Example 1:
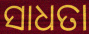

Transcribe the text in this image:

ସାଧତା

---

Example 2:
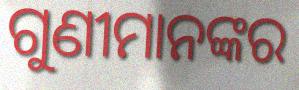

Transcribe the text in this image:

ଗୁଣୀମାନଙ୍କର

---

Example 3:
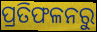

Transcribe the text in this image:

ପ୍ରତିଫଳନରୁ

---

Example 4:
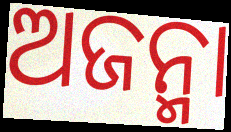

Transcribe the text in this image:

ଅଜନ୍ମା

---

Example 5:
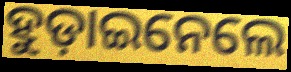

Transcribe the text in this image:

ହୁଡ଼ାଇନେଲେ